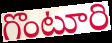
గొంటూరి